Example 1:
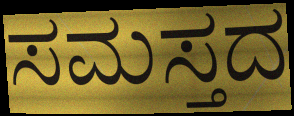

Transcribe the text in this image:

ಸಮಸ್ತದ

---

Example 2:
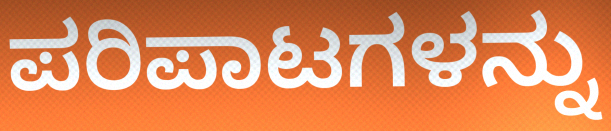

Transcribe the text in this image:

ಪರಿಪಾಟಗಳನ್ನು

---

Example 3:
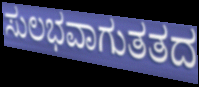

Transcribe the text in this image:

ಸುಲಭವಾಗುತತದ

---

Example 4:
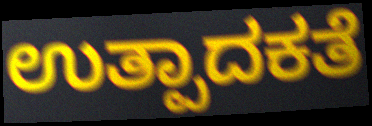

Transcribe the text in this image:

ಉತ್ಪಾದಕತೆ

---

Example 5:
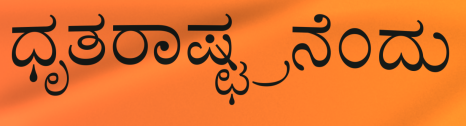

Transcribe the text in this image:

ಧೃತರಾಷ್ಟ್ರನೆಂದು